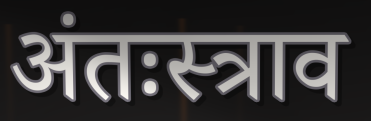
अंतःस्त्राव